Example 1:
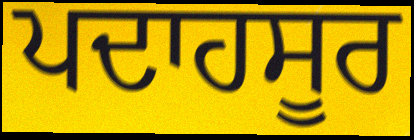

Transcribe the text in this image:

ਪਦਾਹਸੂਰ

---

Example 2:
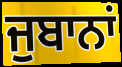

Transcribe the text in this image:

ਜੁਬਾਨਾਂ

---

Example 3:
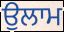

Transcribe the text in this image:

ਉਲਾਮ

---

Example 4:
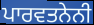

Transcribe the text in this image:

ਪਾਰਵਤਨੇਨੀ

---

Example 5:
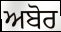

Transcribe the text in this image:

ਅਬੋਰ